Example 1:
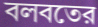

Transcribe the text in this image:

বলবতের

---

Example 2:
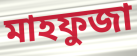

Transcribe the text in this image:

মাহফুজা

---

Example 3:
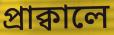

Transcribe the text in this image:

প্রাক্বালে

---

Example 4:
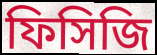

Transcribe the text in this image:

ফিসিজি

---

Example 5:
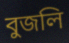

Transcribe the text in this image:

বুজলি